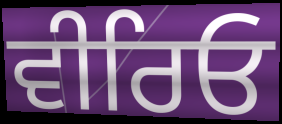
ਵੀਰਿਓ